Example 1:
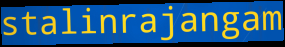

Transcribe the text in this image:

stalinrajangam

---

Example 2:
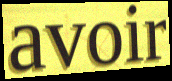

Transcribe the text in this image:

avoir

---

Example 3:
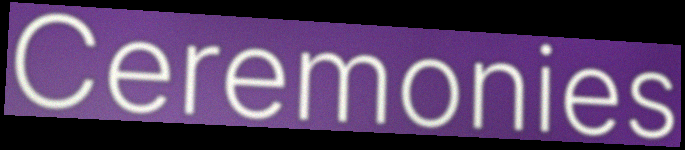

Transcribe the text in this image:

Ceremonies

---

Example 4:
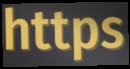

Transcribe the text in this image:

https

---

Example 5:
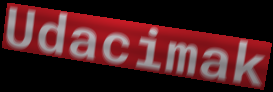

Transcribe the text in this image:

Udacimak